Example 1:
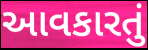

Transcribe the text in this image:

આવકારતું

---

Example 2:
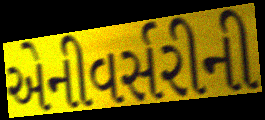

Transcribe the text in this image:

એનીવર્સરીની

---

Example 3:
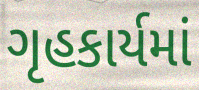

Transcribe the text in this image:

ગૃહકાર્યમાં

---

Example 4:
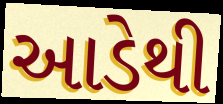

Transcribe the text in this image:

આડેથી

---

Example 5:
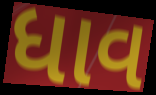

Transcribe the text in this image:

ધાવ